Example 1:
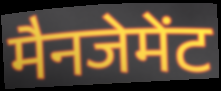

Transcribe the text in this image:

मैनजेमेंट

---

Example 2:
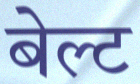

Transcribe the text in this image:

बेल्‍ट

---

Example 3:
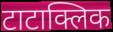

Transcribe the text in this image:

टाटाक्लिक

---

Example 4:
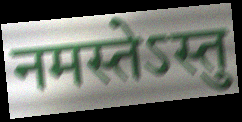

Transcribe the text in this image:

नमस्तेऽस्तु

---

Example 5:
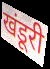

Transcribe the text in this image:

खंडूरी